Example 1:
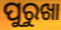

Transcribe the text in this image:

ପୁରୁଖା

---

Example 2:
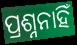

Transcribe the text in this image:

ପ୍ରଶ୍ନନାହିଁ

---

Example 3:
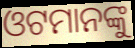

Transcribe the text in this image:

ଓଟମାନଙ୍କୁ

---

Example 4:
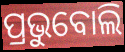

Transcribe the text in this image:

ପ୍ରଭୁବୋଲି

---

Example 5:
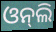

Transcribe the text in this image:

ଓନ୍‍ଲି